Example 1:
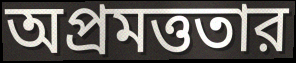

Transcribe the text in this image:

অপ্রমত্ততার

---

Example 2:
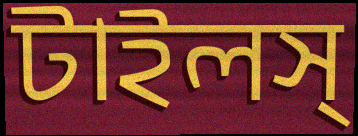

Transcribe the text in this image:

টাইলস্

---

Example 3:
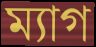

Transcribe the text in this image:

ম্যাগ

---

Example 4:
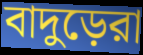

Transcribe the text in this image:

বাদুড়েরা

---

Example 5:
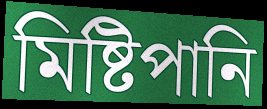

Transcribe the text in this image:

মিষ্টিপানি